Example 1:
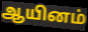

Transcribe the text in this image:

ஆயினம்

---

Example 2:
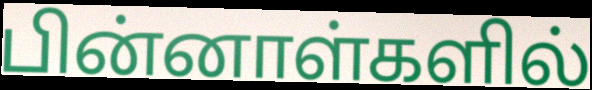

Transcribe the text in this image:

பின்னாள்களில்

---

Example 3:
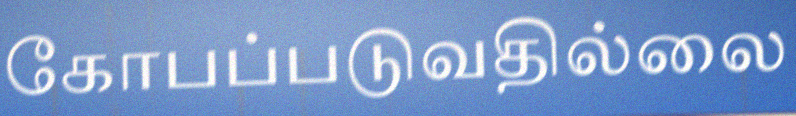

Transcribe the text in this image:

கோபப்படுவதில்லை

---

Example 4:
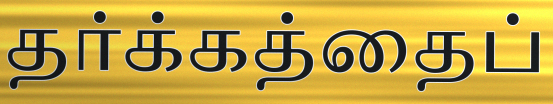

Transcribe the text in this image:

தர்க்கத்தைப்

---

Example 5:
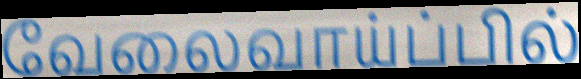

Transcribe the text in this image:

வேலைவாய்ப்பில்